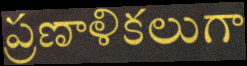
ప్రణాళికలుగా